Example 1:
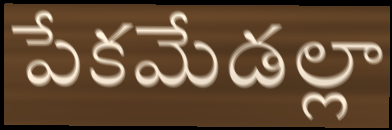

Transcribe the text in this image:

పేకమేడల్లా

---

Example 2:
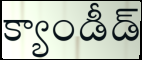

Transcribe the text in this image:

క్యాండీడ్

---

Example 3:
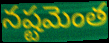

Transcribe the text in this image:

నష్టమెంత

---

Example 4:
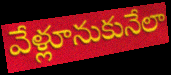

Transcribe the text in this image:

వేళ్లూనుకునేలా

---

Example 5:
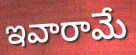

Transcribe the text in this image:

ఇవారామే